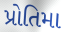
પ્રોતિમા